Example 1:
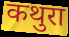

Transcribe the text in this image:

कथुरा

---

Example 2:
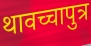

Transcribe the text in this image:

थावच्चापुत्र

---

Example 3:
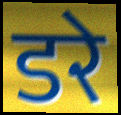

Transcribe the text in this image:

डरे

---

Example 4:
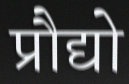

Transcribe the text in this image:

प्रौद्यो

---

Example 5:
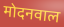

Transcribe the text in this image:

मोदनवाल